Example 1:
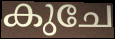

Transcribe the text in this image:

കുചേ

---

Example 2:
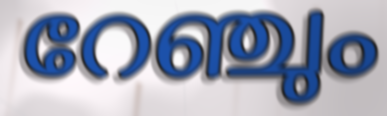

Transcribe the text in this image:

റേഞ്ചും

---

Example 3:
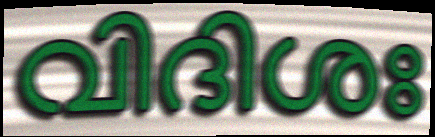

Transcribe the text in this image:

വിദിശഃ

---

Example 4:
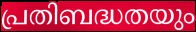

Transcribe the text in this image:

പ്രതിബദ്ധതയും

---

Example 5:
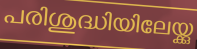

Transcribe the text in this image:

പരിശുദ്ധിയിലേയ്ക്കു